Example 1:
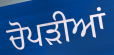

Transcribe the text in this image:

ਚੋਪੜੀਆਂ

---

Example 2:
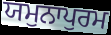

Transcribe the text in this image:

ਯਮੁਨਾਪੁਰਮ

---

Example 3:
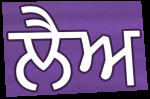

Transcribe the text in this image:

ਲੈਅ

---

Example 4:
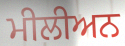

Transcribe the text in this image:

ਮੀਲੀਅਨ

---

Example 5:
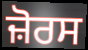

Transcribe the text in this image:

ਜ਼ੋਰਸ